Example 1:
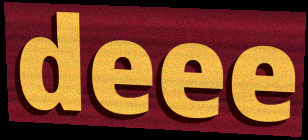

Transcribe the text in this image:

deee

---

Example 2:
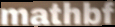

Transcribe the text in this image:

mathbf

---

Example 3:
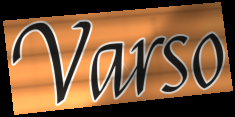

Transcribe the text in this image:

Varso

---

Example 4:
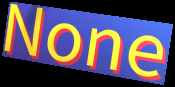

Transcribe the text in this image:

None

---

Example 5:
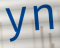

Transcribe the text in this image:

yn